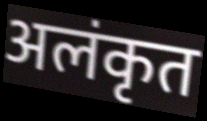
अलंकृत